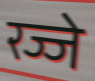
रज्जे